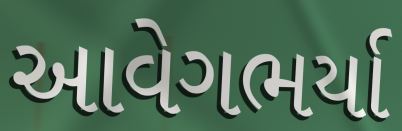
આવેગભર્યા